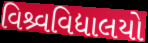
વિશ્ર્વવિદ્યાલયો